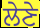
ਲੇਣੇ